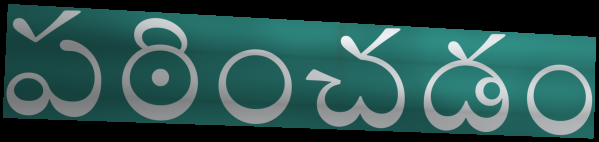
పఠించడం